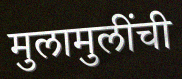
मुलामुलींची